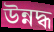
উন্নদ্ধ